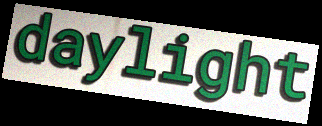
daylight